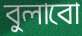
বুলাবো